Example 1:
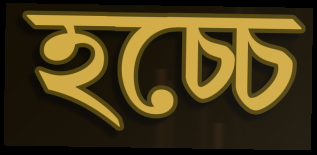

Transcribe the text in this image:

হচ্চে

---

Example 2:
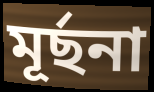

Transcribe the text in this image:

মূর্ছনা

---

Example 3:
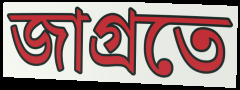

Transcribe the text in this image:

জাগ্রতে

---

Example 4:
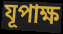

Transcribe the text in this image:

যূপাক্ষ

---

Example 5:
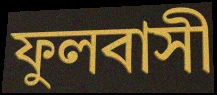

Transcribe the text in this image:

ফুলবাসী